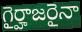
గైర్హాజరైనా